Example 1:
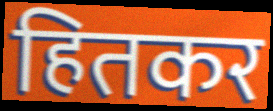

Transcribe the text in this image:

हितकर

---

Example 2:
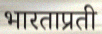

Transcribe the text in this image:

भारताप्रती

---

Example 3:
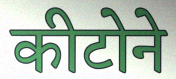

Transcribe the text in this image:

कीटोने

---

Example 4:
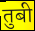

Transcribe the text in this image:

तुबी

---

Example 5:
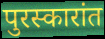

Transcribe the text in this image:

पुरस्कारांत